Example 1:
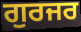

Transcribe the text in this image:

ਗੁਰਜਰ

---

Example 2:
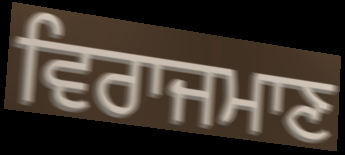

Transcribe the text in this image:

ਵਿਰਾਜਮਾਣ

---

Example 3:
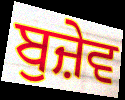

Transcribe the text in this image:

ਬੁਜ਼ੇਵ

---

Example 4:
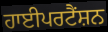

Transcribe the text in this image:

ਹਾਈਪਰਟੈਂਸ਼ਨ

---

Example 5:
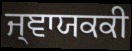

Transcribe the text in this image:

ਜ੍ਞਾਯਕਕੀ